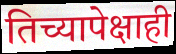
तिच्यापेक्षाही